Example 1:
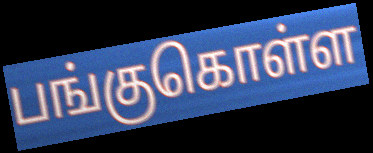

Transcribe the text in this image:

பங்குகொள்ள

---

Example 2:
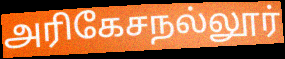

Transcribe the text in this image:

அரிகேசநல்லூர்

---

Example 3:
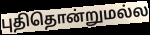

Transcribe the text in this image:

புதிதொன்றுமல்ல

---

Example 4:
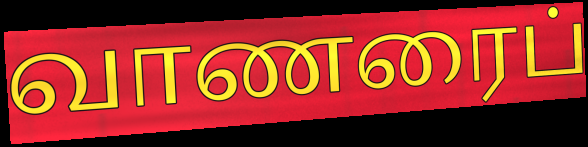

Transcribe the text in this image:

வாணரைப்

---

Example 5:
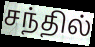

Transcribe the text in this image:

சந்தில்